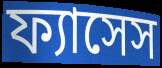
ফ্যাসেস